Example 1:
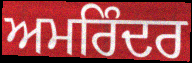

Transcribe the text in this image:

ਅਮਰਿੰਦਰ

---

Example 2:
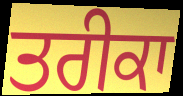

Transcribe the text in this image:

ਤਰੀਕਾ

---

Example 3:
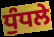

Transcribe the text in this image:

ਧੁੰਧਲੇ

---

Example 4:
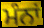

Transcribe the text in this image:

ਮੰਨਾਂ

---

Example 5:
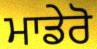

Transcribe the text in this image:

ਮਾਡੇਰੋ